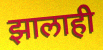
झालाही